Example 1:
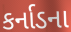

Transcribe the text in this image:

કર્નાડના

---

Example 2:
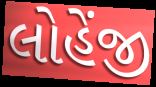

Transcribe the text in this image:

લોહેંજી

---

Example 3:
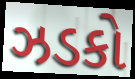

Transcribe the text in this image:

ઝડકો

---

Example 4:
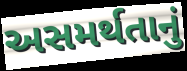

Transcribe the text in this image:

અસમર્થતાનું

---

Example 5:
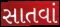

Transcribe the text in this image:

સાતવાં